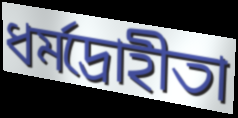
ধর্মদ্রোহীতা